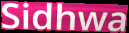
Sidhwa